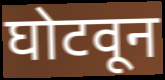
घोटवून